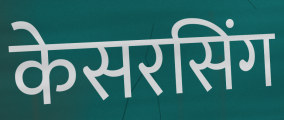
केसरसिंग